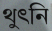
থুৎনি